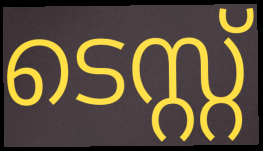
ടെസ്റ്റ്